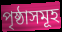
পৃষ্ঠাসমূহ